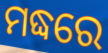
ମଦ୍ଧରେ